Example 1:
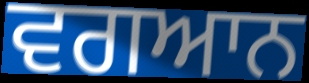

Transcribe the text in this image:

ਵਗਆਨ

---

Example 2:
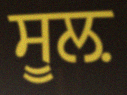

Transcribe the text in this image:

ਸੂਲ਼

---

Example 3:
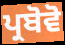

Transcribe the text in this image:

ਪ੍ਰਬੋਵੋ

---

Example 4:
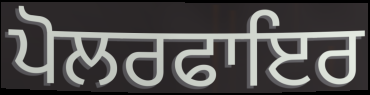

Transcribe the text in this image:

ਪੋਲਰਫਾਇਰ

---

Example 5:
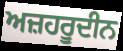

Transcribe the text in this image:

ਅਜ਼ਹਰੂਦੀਨ